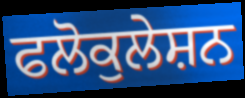
ਫਲੋਕੁਲੇਸ਼ਨ